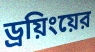
ড্রয়িংয়ের